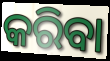
କରିବା